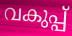
വകുപ്പ്